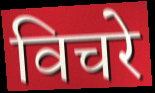
विचरे